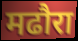
मढौरा